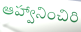
ఆహ్వానించిరి